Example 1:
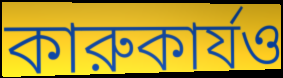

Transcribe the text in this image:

কারুকার্যও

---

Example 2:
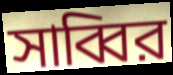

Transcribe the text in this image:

সাব্বির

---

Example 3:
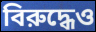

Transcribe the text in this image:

বিরুদ্ধেও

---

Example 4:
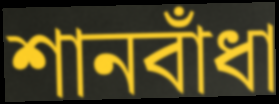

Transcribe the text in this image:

শানবাঁধা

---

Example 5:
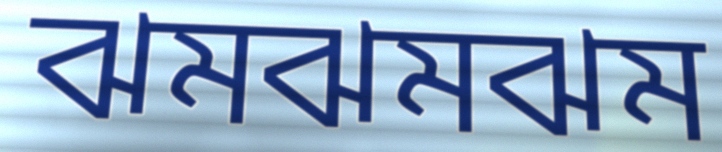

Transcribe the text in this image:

ঝমঝমঝম